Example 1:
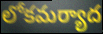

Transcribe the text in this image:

లోకమర్యాద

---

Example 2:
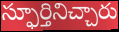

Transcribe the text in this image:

స్ఫూర్తినిచ్చారు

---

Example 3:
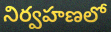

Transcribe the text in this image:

నిర్వహణలో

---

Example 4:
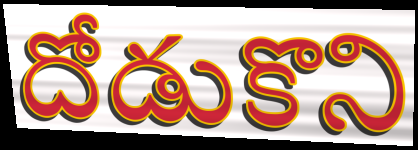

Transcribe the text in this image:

దోడుకొని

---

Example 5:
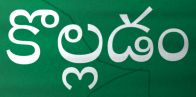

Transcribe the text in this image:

కొల్లడం